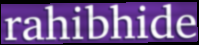
rahibhide